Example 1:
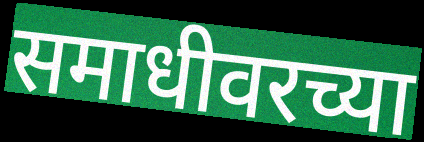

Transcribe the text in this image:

समाधीवरच्या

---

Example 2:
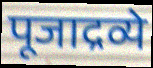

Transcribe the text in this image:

पूजाद्रव्ये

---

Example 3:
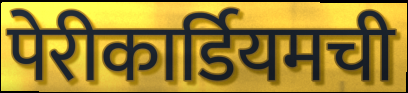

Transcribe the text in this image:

पेरीकार्डियमची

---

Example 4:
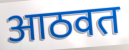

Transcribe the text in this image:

आठवत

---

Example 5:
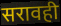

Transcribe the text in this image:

सरावही